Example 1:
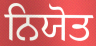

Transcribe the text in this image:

ਨਿਯੋਤ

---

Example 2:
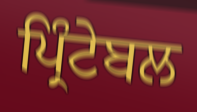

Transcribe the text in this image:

ਪ੍ਰਿੰਟੇਬਲ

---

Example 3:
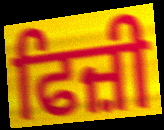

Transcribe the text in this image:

ਫਿਜ਼ੀ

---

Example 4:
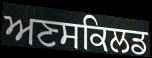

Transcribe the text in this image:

ਅਣਸਕਿਲਡ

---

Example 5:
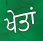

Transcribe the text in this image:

ਖੇਤਾਂ